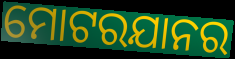
ମୋଟରଯାନର